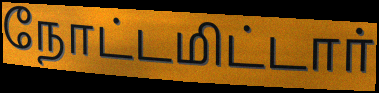
நோட்டமிட்டார்